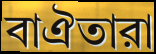
বাঐতারা